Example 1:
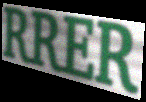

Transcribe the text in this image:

RRER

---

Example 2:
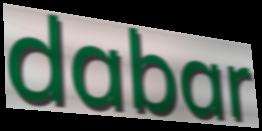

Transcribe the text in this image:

dabar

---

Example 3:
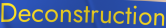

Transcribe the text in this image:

Deconstruction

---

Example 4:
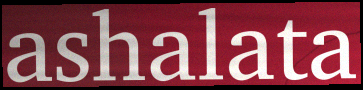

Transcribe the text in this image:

ashalata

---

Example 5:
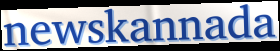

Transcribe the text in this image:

newskannada